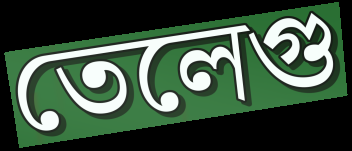
তেলেগু